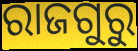
ରାଜଗୁରୁ